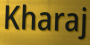
Kharaj